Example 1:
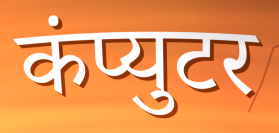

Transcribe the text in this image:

कंप्युटर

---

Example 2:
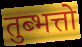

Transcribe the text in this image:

तुब्भत्तो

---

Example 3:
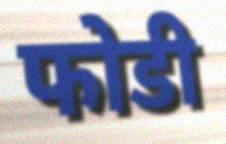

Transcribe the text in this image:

फोडी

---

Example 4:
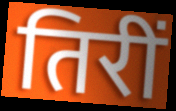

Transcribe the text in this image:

तिरीं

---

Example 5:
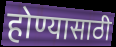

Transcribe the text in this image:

होण्यासाठी